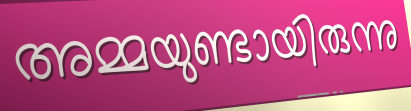
അമ്മയുണ്ടായിരുന്നു